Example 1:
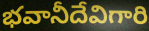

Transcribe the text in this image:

భవానీదేవిగారి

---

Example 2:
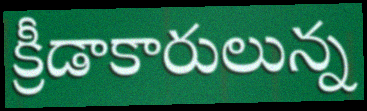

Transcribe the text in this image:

క్రీడాకారులున్న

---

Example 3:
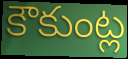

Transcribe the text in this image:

కౌకుంట్ల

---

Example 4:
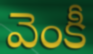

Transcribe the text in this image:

వెంకీ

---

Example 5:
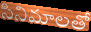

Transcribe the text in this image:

సినిమాలతో